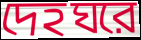
দেহঘরে